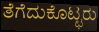
ತೆಗೆದುಕೊಟ್ಟರು